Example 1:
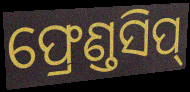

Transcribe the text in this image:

ଫ୍ରେଣ୍ଡସିପ୍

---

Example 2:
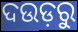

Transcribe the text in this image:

ଦଉଡ଼ରୁ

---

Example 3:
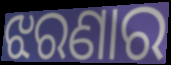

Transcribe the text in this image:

ଝରଣାର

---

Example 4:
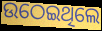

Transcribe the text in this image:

ଉଠେଇଥିଲେ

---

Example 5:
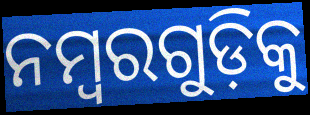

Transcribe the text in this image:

ନମ୍ବରଗୁଡ଼ିକୁ